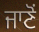
ਜਾਣੋਂ